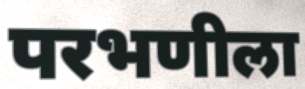
परभणीला